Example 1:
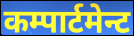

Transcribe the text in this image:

कम्पार्टमेन्ट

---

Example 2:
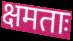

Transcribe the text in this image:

क्षमताः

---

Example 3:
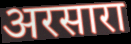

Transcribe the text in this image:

अरसारा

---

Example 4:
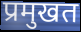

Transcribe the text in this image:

प्रमुखत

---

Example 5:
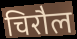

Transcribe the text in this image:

चिरौल